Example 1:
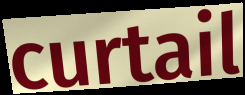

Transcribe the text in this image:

curtail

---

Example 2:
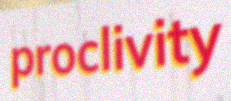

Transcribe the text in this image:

proclivity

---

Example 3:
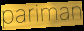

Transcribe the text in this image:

pariman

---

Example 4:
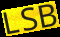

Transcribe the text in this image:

LSB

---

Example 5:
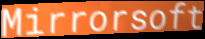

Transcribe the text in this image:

Mirrorsoft